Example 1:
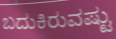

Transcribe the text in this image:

ಬದುಕಿರುವಷ್ಟು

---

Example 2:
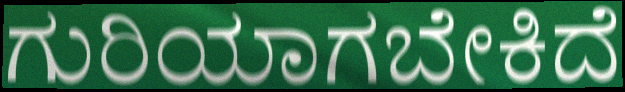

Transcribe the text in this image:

ಗುರಿಯಾಗಬೇಕಿದೆ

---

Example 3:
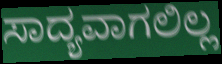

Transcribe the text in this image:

ಸಾದ್ಯವಾಗಲಿಲ್ಲ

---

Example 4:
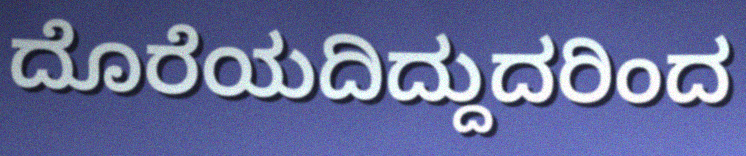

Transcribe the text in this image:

ದೊರೆಯದಿದ್ದುದರಿಂದ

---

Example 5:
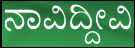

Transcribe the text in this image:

ನಾವಿದ್ದೀವಿ